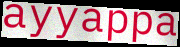
ayyappa